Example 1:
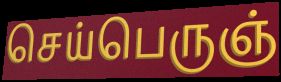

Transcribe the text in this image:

செய்பெருஞ்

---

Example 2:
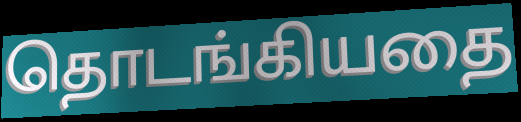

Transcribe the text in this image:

தொடங்கியதை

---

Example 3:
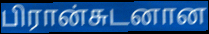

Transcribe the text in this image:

பிரான்சுடனான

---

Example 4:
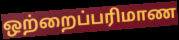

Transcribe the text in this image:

ஒற்றைப்பரிமாண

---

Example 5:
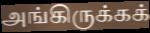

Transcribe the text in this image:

அங்கிருக்கக்